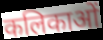
कलिकाओं